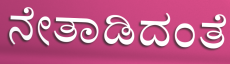
ನೇತಾಡಿದಂತೆ